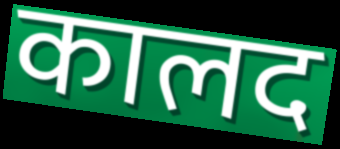
कालद